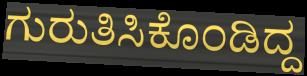
ಗುರುತಿಸಿಕೊಂಡಿದ್ದ